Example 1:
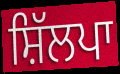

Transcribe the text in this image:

ਸ਼ਿੱਲਪਾ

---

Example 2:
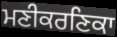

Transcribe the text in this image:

ਮਣੀਕਰਣਿਕਾ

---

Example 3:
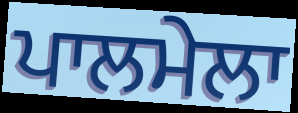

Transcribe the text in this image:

ਪਾਲਮੇਲਾ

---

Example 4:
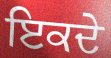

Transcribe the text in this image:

ਇਕਦੇ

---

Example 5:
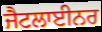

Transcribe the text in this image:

ਜੈਟਲਾਈਨਰ